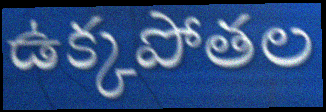
ఉక్కపోతల